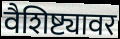
वैशिष्ट्यावर